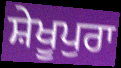
ਸ਼ੇਖੂਪੁਰਾ